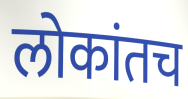
लोकांतच